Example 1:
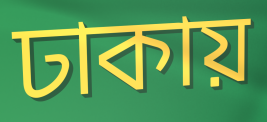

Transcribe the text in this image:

ঢাকায়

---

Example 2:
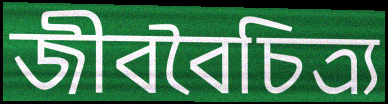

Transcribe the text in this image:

জীববৈচিত্র্য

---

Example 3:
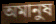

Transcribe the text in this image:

অমানুষ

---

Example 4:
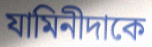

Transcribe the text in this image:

যামিনীদাকে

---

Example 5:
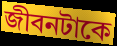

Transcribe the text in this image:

জীবনটাকে